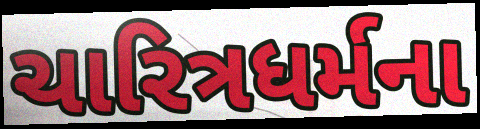
ચારિત્રધર્મના